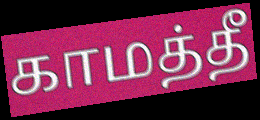
காமத்தீ